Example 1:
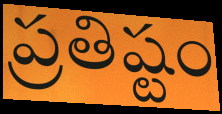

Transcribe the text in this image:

ప్రతిష్టం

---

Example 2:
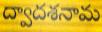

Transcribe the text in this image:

ద్వాదశనామ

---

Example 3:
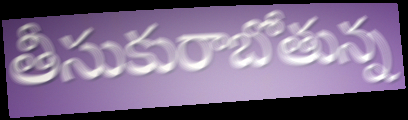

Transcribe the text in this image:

తీసుకురాబోతున్న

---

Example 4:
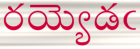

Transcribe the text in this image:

రయ్యెడఁ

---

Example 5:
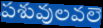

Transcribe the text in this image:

పశువులవలె